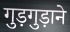
गुड़गुड़ाने